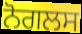
ਨੋਗਲਸ